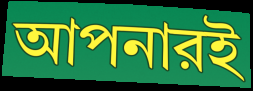
আপনারই